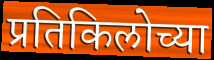
प्रतिकिलोच्या